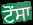
ਟੋਂਸਾ